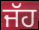
ਜੱਹ